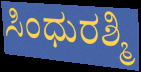
ಸಿಂಧುರಶ್ಮಿ